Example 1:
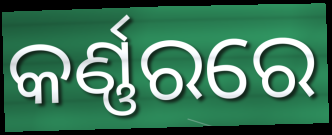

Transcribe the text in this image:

କର୍ଣ୍ଣରରେ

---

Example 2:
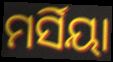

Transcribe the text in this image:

ମର୍ସିୟା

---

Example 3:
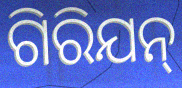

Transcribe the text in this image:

ଗିରିଯନ୍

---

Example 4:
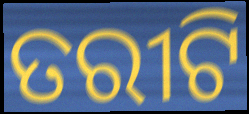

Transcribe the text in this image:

ତରୀଟି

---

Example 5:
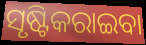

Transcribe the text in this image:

ସୃଷ୍ଟିକରାଇବା